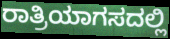
ರಾತ್ರಿಯಾಗಸದಲ್ಲಿ